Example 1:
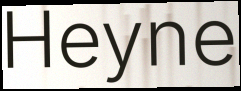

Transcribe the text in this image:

Heyne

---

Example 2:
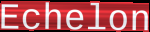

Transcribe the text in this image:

Echelon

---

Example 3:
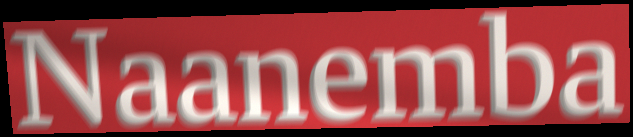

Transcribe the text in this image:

Naanemba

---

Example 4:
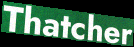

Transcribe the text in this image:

Thatcher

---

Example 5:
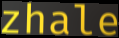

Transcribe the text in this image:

zhale